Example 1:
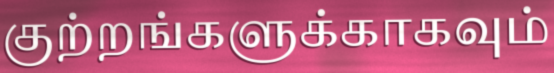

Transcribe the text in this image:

குற்றங்களுக்காகவும்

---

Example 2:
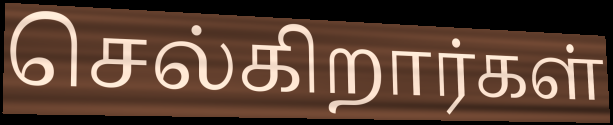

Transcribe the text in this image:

செல்கிறார்கள்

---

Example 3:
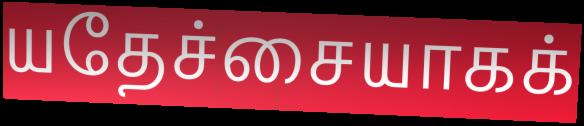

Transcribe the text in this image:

யதேச்சையாகக்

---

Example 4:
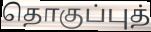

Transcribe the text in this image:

தொகுப்புத்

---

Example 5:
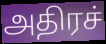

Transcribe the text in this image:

அதிரச்